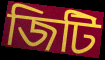
জিটি